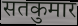
सतकुमार